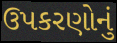
ઉપકરણોનું